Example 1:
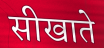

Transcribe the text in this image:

सीखाते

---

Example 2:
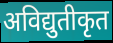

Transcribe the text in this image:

अविद्युतीकृत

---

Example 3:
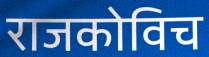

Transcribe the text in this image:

राजकोविच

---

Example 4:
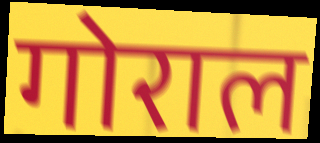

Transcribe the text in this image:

गोराल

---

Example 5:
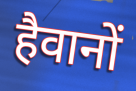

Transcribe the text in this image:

हैवानों